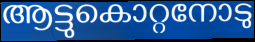
ആട്ടുകൊറ്റനോടു